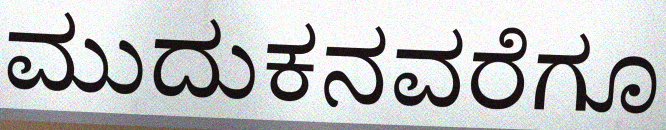
ಮುದುಕನವರೆಗೂ